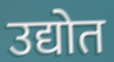
उद्योत